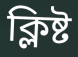
ক্লিষ্ট